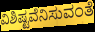
ವಿಶಿಷ್ಟವೆನಿಸುವಂತೆ